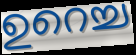
ഉറെച്ച